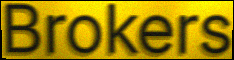
Brokers